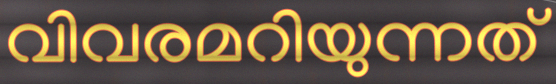
വിവരമറിയുന്നത്